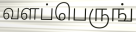
வளப்பெருங்